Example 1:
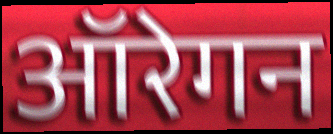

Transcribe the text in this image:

ऑरेगन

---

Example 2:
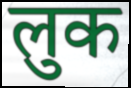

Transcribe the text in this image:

लुक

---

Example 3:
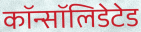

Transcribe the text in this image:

कॉन्सॉलिडेटेड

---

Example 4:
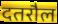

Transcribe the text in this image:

दतरौल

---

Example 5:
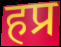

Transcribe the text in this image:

हप्र